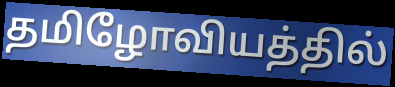
தமிழோவியத்தில்